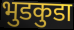
भुडकुडा